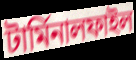
টার্মিনালফাইল